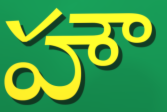
హౌ